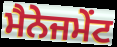
ਮੈਨੇਜਮੇੰਟ